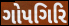
ગોપગિરિ